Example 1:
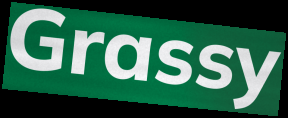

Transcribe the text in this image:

Grassy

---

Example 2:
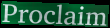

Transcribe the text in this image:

Proclaim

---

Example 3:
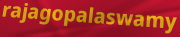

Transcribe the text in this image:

rajagopalaswamy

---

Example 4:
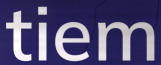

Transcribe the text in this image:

tiem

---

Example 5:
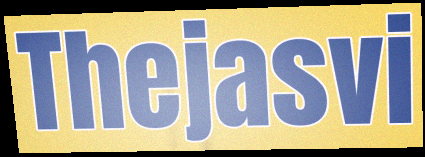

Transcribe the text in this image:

Thejasvi